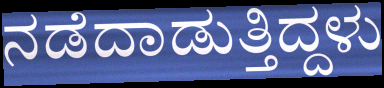
ನಡೆದಾಡುತ್ತಿದ್ದಳು